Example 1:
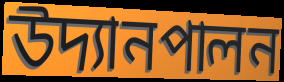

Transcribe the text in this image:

উদ্যানপালন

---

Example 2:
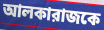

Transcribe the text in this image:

আলকারাজকে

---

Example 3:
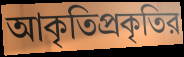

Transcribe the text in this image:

আকৃতিপ্রকৃতির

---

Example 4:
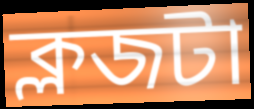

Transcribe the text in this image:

ক্লজটা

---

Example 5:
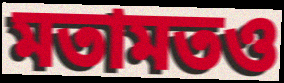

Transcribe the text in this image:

মতামতও